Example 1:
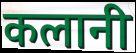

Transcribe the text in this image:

कलानी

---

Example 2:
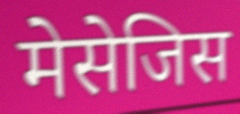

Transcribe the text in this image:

मेसेजिस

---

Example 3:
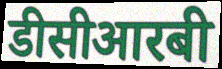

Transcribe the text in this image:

डीसीआरबी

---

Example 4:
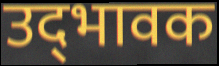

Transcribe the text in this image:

उद्भावक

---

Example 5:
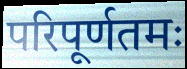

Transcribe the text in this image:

परिपूर्णतमः